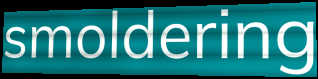
smoldering